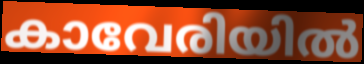
കാവേരിയിൽ